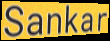
Sankar